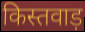
किस्तवाड़